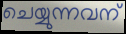
ചെയ്യുന്നവന്